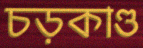
চড়কাণ্ড